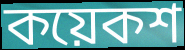
কয়েকশ